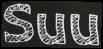
Suu